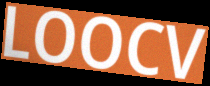
LOOCV